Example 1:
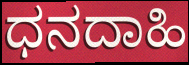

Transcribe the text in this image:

ಧನದಾಹಿ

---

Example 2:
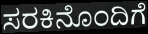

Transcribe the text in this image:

ಸರಕಿನೊಂದಿಗೆ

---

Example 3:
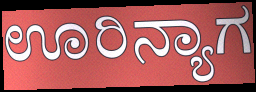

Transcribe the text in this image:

ಊರಿನ್ಯಾಗ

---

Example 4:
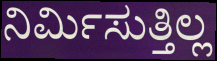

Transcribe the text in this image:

ನಿರ್ಮಿಸುತ್ತಿಲ್ಲ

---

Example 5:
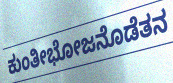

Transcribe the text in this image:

ಕುಂತೀಭೋಜನೊಡೆತನ